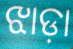
ଝାଡ଼ା